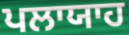
ਪਲਾਯਾਹ